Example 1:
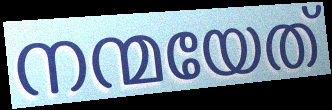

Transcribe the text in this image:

നന്മയേത്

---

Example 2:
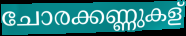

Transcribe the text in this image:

ചോരക്കണ്ണുകള്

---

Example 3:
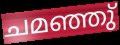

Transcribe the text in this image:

ചമഞ്ഞു്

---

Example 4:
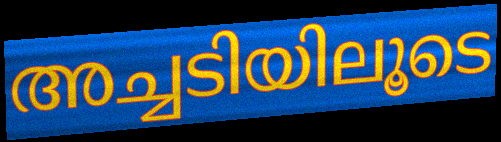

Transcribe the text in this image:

അച്ചടിയിലൂടെ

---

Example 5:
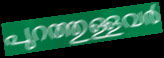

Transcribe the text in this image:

പുറത്തുള്ളവർ